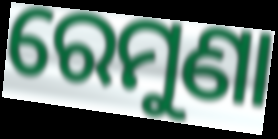
ରେମୁଣା